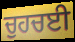
ਚੁਹਚਈ